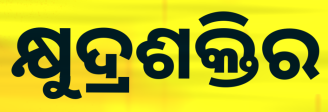
କ୍ଷୁଦ୍ରଶକ୍ତିର